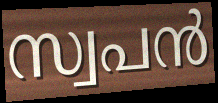
സ്വപൻ